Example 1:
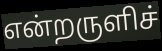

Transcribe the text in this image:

என்றருளிச்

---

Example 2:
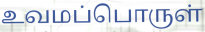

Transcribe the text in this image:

உவமப்பொருள்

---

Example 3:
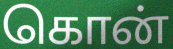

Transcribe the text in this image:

கொன்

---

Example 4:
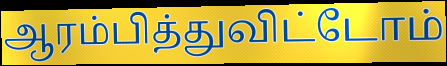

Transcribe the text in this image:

ஆரம்பித்துவிட்டோம்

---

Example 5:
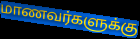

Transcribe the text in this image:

மாணவர்களுக்கு